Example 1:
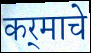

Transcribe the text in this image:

कर्माचे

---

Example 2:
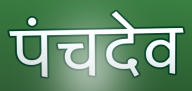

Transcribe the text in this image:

पंचदेव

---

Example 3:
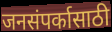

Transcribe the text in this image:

जनसंपर्कासाठी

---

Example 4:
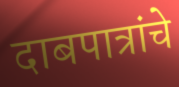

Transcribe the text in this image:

दाबपात्रांचे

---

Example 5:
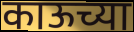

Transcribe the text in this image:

काऊच्या